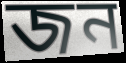
জন